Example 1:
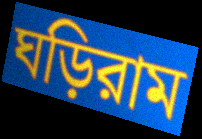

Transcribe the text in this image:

ঘড়িরাম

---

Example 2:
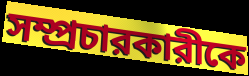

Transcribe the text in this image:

সম্প্রচারকারীকে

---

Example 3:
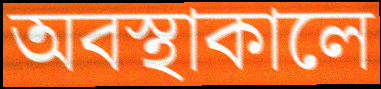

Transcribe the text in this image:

অবস্থাকালে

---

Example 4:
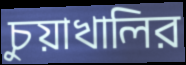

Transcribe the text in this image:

চুয়াখালির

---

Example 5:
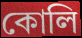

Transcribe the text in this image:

কোলি